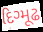
દિગ્મૂઢ